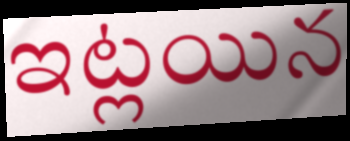
ఇట్లయిన